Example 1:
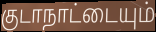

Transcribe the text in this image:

குடாநாட்டையும்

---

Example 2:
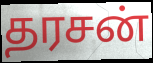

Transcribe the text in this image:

தரசன்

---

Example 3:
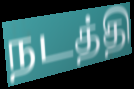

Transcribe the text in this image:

நடத்தி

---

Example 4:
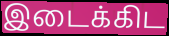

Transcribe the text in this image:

இடைக்கிட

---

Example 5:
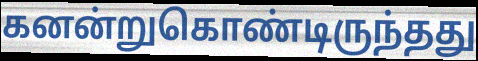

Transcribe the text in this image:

கனன்றுகொண்டிருந்தது